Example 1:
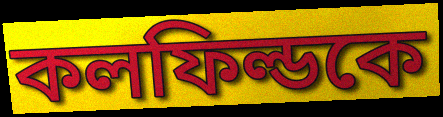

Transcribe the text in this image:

কলফিল্ডকে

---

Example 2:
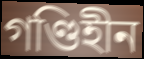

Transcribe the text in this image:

গণ্ডিহীন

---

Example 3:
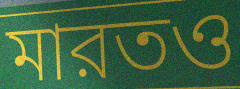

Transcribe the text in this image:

মারতও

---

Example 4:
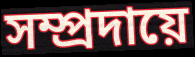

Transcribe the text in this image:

সম্প্রদায়ে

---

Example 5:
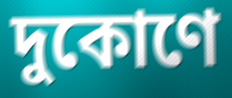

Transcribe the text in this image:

দুকোণে